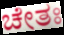
ಚೇತಃ